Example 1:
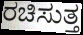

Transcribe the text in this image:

ರಚಿಸುತ್ತ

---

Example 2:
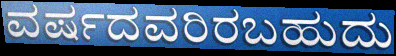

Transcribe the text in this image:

ವರ್ಷದವರಿರಬಹುದು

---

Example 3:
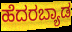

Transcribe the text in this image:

ಹೆದರಬ್ಯಾಡ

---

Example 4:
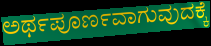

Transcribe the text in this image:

ಅರ್ಥಪೂರ್ಣವಾಗುವುದಕ್ಕೆ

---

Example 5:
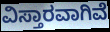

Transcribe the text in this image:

ವಿಸ್ತಾರವಾಗಿವೆ